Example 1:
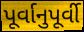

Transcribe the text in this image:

પૂર્વાનુપૂર્વી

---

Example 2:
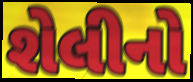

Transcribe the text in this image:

શેલીનો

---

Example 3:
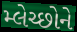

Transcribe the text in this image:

મ્લેચ્છોને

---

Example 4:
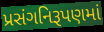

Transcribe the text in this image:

પ્રસંગનિરૂપણમાં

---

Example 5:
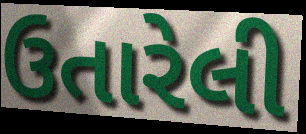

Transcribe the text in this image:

ઉતારેલી